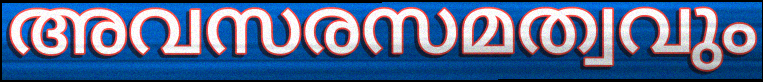
അവസരസമത്വവും